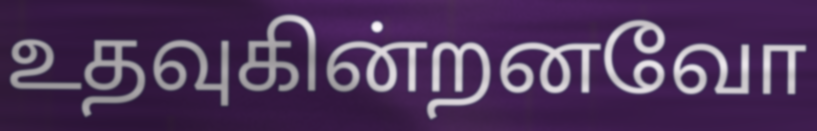
உதவுகின்றனவோ